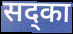
सद्का